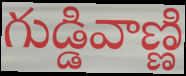
గుడ్డివాణ్ణి